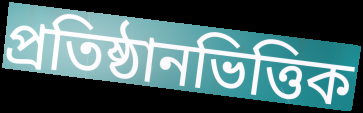
প্রতিষ্ঠানভিত্তিক